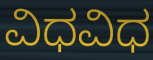
ವಿಧವಿಧ